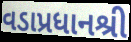
વડાપ્રધાનશ્રી